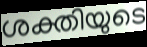
ശക്തിയുടെ